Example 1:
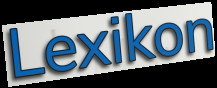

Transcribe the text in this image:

Lexikon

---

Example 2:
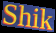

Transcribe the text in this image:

Shik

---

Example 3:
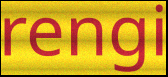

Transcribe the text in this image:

rengi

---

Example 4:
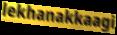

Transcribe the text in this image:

lekhanakkaagi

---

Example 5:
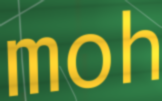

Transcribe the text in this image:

moh